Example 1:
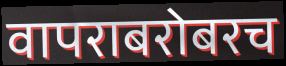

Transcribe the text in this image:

वापराबरोबरच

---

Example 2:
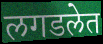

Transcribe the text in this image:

लगडलेत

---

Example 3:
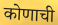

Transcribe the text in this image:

कोणाची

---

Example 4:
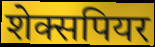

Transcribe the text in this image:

शेक्सपियर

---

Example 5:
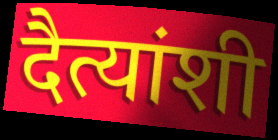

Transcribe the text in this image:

दैत्यांशी